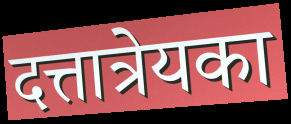
दत्तात्रेयका